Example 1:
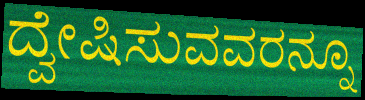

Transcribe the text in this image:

ದ್ವೇಷಿಸುವವರನ್ನೂ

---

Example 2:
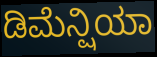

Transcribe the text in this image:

ಡಿಮೆನ್ಷಿಯಾ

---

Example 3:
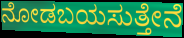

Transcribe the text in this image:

ನೋಡಬಯಸುತ್ತೇನೆ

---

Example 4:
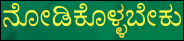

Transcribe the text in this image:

ನೋಡಿಕೊಳ್ಳಬೇಕು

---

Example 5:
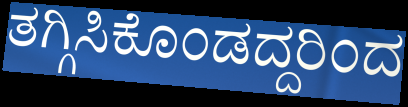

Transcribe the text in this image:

ತಗ್ಗಿಸಿಕೊಂಡದ್ದರಿಂದ